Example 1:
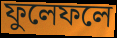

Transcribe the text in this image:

ফুলেফলে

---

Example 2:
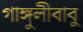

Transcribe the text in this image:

গাঙ্গুলীবাবু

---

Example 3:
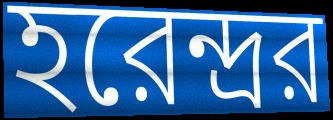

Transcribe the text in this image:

হরেন্দ্রর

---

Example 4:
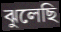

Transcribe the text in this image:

ঝুলেছি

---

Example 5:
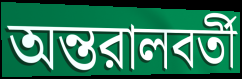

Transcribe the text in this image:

অন্তরালবর্তী